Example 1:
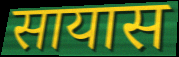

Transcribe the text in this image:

सायास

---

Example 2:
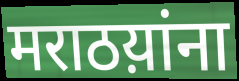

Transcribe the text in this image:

मराठय़ांना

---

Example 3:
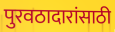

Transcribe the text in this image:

पुरवठादारांसाठी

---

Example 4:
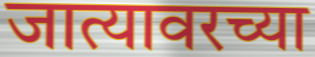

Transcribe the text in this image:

जात्यावरच्या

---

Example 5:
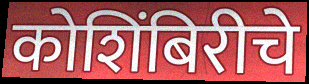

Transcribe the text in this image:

कोशिंबिरीचे